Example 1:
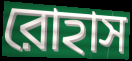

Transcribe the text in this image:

রোহাস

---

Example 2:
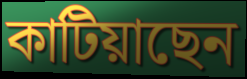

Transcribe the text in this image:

কাটিয়াছেন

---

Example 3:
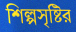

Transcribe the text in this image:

শিল্পসৃষ্টির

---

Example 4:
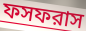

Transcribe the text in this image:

ফসফরাস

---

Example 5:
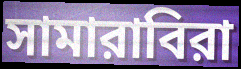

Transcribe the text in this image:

সামারাবিরা